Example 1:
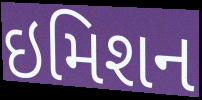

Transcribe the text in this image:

ઇમિશન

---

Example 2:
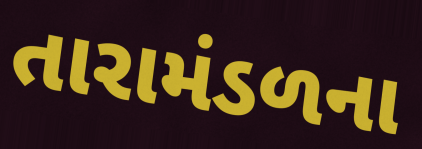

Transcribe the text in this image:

તારામંડળના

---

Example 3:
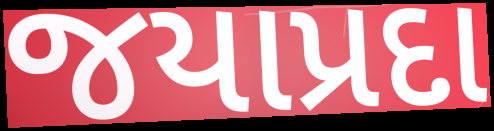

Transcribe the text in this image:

જયાપ્રદા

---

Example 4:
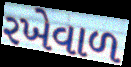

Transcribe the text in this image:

રખેવાળ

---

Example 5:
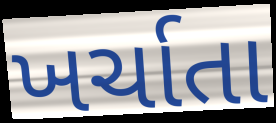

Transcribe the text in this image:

ખર્ચાતા